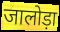
जालोड़ा